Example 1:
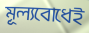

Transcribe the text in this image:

মূল্যবোধেই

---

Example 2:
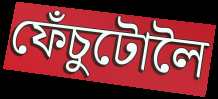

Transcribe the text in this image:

ফেঁচুটোলৈ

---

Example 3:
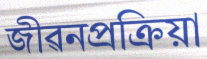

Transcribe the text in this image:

জীৱনপ্ৰক্ৰিয়া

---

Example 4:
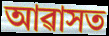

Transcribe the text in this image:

আৱাসত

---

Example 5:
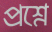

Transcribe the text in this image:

প্ৰশ্নে